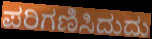
ಪರಿಗಣಿಸಿದುದು